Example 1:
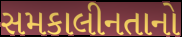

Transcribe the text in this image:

સમકાલીનતાનો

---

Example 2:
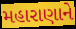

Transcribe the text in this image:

મહારાણાને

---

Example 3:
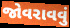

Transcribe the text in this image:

જોવરાવવું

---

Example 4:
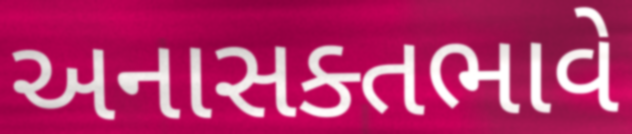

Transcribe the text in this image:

અનાસક્તભાવે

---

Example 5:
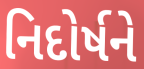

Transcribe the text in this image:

નિદોર્ષને